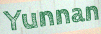
Yunnan